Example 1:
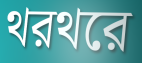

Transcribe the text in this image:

থরথরে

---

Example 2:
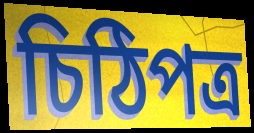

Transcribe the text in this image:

চিঠিপত্র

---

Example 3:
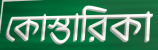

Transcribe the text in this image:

কোস্তারিকা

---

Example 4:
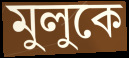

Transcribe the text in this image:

মুলুকে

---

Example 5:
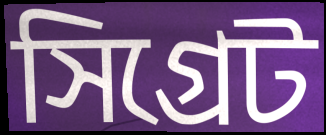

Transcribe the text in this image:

সিগ্রেট